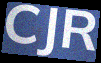
CJR